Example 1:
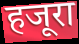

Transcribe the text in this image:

हजूरा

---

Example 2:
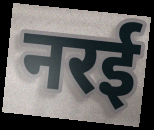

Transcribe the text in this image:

नरई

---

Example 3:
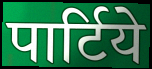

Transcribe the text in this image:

पार्टिये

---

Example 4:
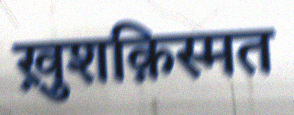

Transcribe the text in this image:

ख़ुशक़िस्मत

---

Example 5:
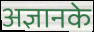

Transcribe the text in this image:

अज्ञानके